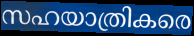
സഹയാത്രികരെ